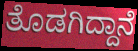
ತೊಡಗಿದ್ದಾನೆ